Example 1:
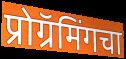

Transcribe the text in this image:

प्रोग्रॅमिंगचा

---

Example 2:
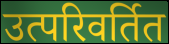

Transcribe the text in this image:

उत्परिवर्तित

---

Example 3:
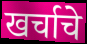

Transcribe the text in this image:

खर्चाचे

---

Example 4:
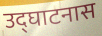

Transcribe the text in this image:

उद्घाटनास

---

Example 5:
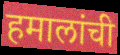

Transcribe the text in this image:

हमालांची